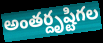
అంతర్దృష్టిగల